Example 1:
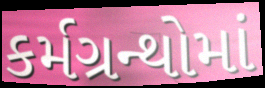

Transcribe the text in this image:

કર્મગ્રન્થોમાં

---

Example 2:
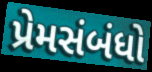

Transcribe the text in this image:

પ્રેમસંબંધો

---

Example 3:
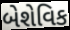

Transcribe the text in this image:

બેશેવિક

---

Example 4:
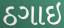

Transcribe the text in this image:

ઠગાઇ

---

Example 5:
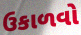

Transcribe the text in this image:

ઉકાળવો